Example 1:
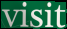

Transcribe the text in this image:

visit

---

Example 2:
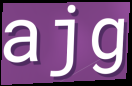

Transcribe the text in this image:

ajg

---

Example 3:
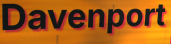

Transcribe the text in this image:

Davenport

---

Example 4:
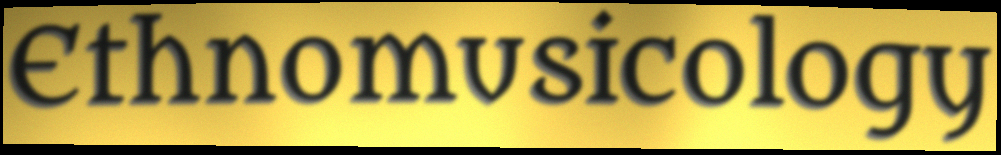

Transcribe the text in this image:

Ethnomusicology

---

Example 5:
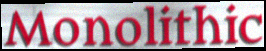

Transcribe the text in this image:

Monolithic